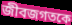
জীবজগতকে